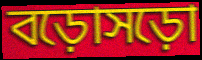
বড়োসড়ো